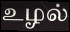
உழல்